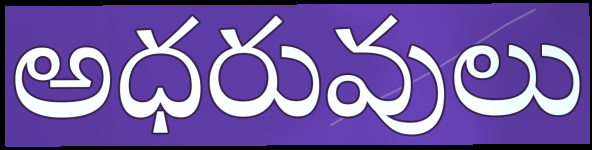
అధరువులు